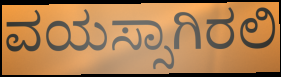
ವಯಸ್ಸಾಗಿರಲಿ